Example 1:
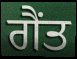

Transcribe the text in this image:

ਗੈਂਤ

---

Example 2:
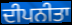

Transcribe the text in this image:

ਦੀਪਨੀਤਾ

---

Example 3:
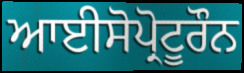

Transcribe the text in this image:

ਆਈਸੋਪ੍ਰੋਟੂਰੌਨ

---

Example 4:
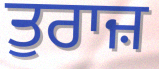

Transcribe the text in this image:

ਤੁਰਾਜ਼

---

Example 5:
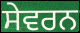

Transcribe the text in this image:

ਸੇਵਰਨ